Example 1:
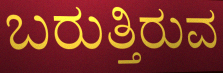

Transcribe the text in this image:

ಬರುತ್ತಿರುವ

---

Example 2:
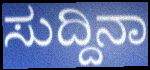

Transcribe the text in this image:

ಸುದ್ದಿನಾ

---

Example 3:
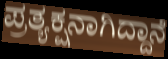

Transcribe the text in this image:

ಪ್ರತ್ಯಕ್ಷನಾಗಿದ್ದಾನೆ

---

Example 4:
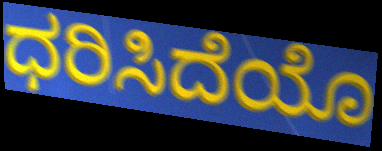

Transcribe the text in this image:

ಧರಿಸಿದೆಯೊ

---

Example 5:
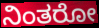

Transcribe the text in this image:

ನಿಂತರೋ